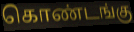
கொண்டங்கு